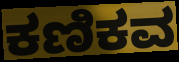
ಕಣಿಕವ